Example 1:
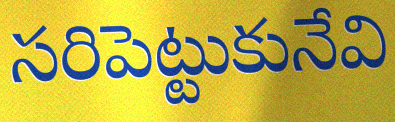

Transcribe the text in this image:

సరిపెట్టుకునేవి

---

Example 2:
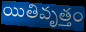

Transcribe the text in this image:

యితివృత్తం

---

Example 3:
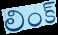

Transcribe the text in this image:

లింక్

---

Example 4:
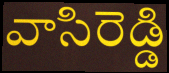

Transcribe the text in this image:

వాసిరెడ్డి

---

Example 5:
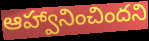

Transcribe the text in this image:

ఆహ్వానించిందని